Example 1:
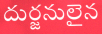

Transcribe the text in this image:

దుర్జనులైన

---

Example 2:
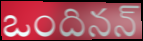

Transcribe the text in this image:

ఒందినన్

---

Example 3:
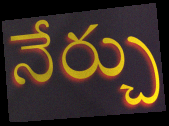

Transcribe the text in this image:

నేర్చు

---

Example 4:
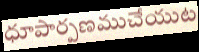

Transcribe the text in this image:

ధూపార్పణముచేయుట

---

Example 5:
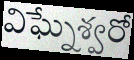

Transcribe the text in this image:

విఘ్నేశ్వరో